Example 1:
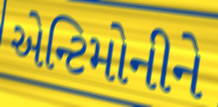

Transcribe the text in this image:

એન્ટિમોનીને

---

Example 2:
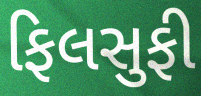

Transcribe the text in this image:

ફિલસુફી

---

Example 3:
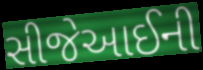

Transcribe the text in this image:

સીજેઆઈની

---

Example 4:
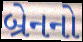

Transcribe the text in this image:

બ્રેનનો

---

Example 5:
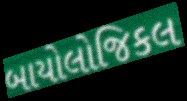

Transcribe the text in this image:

બાયોલોજિકલ